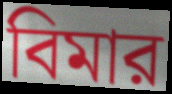
বিমার